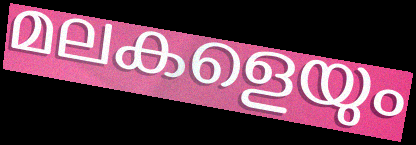
മലകളെയും